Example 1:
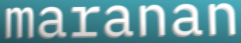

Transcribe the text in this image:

maranan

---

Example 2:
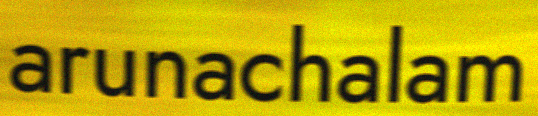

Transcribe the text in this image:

arunachalam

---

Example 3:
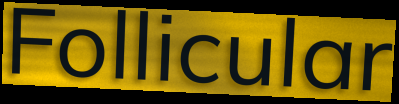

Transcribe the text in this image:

Follicular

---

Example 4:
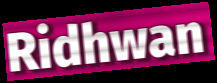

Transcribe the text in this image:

Ridhwan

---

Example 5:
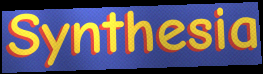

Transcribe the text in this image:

Synthesia